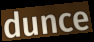
dunce